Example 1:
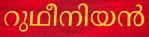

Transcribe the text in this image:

റുഥീനിയൻ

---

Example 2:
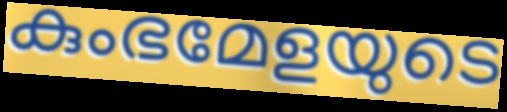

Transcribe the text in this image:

കുംഭമേളയുടെ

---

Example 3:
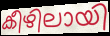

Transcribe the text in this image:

കീഴിലായി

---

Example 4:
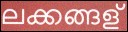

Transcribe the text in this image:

ലക്കങ്ങള്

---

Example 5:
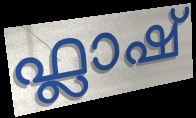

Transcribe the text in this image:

ഫ്ലാഷ്